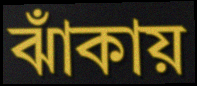
ঝাঁকায়